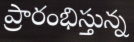
ప్రారంభిస్తున్న